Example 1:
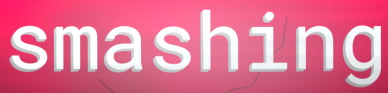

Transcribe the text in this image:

smashing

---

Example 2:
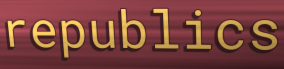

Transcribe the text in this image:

republics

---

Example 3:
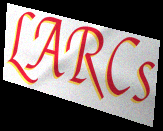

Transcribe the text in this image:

LARCs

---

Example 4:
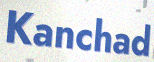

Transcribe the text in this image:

Kanchad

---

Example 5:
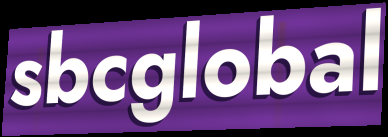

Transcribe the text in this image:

sbcglobal